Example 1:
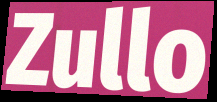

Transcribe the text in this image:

Zullo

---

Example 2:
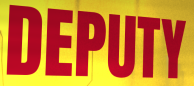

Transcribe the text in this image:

DEPUTY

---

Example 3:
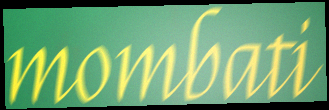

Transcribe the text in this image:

mombati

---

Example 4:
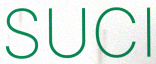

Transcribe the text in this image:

SUCI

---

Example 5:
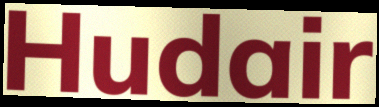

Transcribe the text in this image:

Hudair